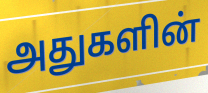
அதுகளின்